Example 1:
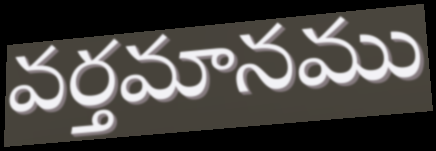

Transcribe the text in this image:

వర్తమానము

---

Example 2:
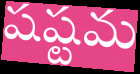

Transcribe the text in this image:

షష్టమ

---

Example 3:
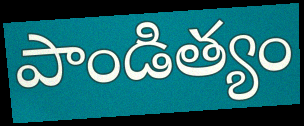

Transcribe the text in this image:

పాండిత్యం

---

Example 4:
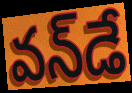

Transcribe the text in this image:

వన్‌డే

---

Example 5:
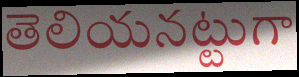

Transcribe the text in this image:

తెలియనట్టుగా